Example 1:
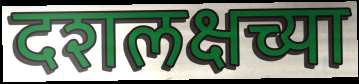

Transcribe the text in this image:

दशलक्षच्या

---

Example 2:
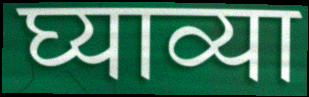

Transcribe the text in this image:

घ्याव्या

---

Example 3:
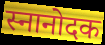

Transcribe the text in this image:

स्नानोदक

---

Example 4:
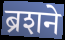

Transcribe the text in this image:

ब्रशने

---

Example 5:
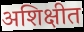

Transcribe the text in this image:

अशिक्षीत